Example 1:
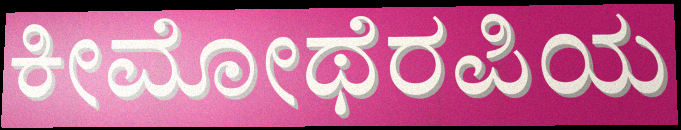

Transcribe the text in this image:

ಕೀಮೋಥೆರಪಿಯ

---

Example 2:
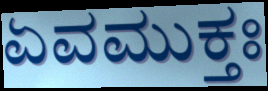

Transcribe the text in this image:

ಏವಮುಕ್ತಃ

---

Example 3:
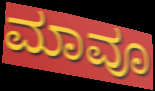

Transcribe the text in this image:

ಮಾವೂ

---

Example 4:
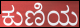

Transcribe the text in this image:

ಕುಣಿಯ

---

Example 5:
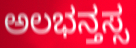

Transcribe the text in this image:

ಅಲಭನ್ತಸ್ಸ